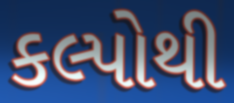
કલ્પોથી